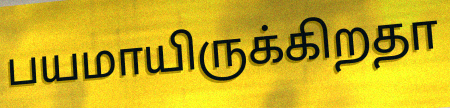
பயமாயிருக்கிறதா